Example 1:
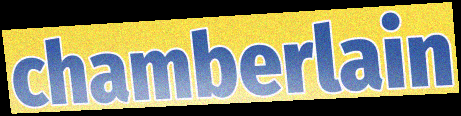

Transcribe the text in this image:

chamberlain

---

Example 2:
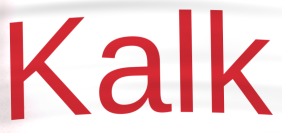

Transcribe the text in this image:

Kalk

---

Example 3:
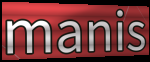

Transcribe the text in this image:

manis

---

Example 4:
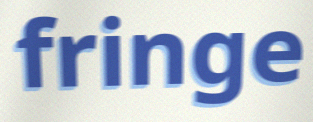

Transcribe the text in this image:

fringe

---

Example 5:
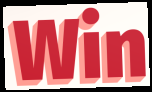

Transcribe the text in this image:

Win